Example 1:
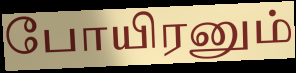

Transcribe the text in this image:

போயிரனும்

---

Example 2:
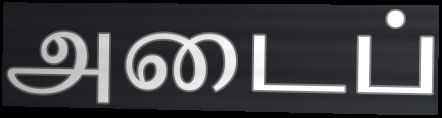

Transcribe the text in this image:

அடைப்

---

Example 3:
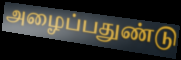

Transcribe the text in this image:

அழைப்பதுண்டு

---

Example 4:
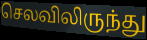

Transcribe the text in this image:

செலவிலிருந்து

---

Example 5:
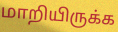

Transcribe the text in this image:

மாறியிருக்க